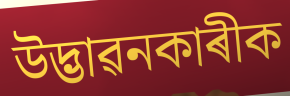
উদ্ভাৱনকাৰীক